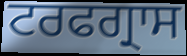
ਟਰਫਗ੍ਰਾਸ